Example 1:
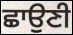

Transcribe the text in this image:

ਛਾਉਣੀ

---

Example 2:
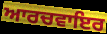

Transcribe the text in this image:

ਆਰਚਵਾਇਰ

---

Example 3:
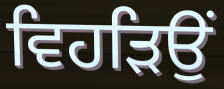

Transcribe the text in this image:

ਵਿਹੜਿਉਂ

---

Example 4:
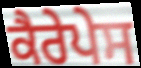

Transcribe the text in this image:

ਕੈਰੇਪੇਸ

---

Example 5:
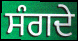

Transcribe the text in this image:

ਸੰਗਦੇ